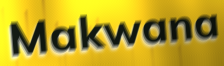
Makwana